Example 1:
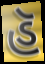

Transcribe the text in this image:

હૅ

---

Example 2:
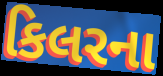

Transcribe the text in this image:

કિલરના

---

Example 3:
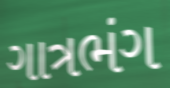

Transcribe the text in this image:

ગાત્રભંગ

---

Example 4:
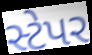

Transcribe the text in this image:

સ્ટેપર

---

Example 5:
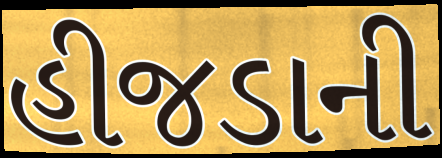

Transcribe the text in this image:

હીજડાની